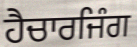
ਹੈਚਾਰਜਿੰਗ